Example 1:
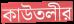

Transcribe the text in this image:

কাউতলীর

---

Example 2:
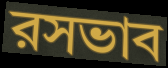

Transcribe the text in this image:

রসভাব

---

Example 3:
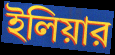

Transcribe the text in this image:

ইলিয়ার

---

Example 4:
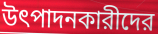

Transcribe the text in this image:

উৎপাদনকারীদের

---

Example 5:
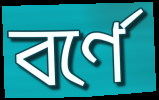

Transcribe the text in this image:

বর্ণে